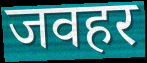
जवहर